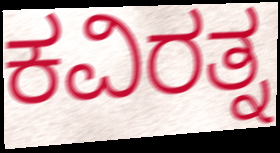
ಕವಿರತ್ನ